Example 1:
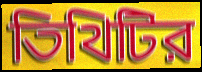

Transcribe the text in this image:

তিথিটির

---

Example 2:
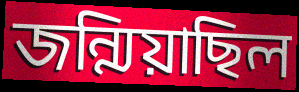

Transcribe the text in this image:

জন্মিয়াছিল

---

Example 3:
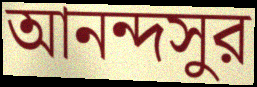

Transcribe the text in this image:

আনন্দসুর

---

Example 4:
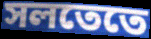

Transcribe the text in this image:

সলতেতে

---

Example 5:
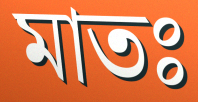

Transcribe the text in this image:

মাতঃ